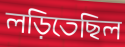
লড়িতেছিল